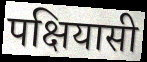
पक्षियासी